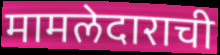
मामलेदाराची